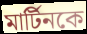
মার্টিনকে